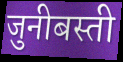
जुनीबस्ती